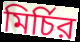
মির্চির